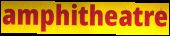
amphitheatre